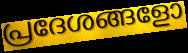
പ്രദേശങ്ങളോ